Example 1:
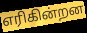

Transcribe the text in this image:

எரிகின்றன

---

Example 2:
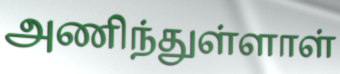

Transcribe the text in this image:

அணிந்துள்ளாள்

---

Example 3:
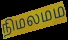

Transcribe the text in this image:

நிமலமம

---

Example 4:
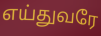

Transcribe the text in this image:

எய்துவரே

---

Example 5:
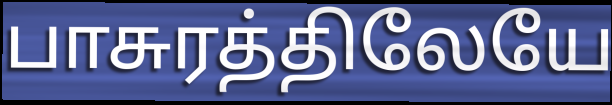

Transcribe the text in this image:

பாசுரத்திலேயே